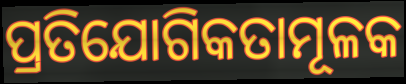
ପ୍ରତିଯୋଗିକତାମୂଳକ